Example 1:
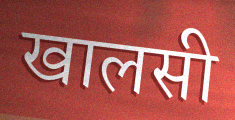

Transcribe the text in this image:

खालसी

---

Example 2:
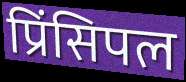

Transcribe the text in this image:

प्रिंसिपल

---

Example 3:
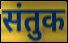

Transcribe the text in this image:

संतुक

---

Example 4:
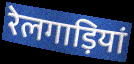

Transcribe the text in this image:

रेलगाड़ियां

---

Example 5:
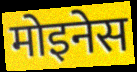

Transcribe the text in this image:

मोइनेस